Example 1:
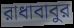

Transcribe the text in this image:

রাধাবাবুর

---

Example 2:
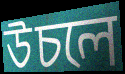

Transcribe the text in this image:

উচলে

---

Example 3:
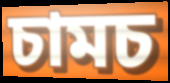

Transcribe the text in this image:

চামচ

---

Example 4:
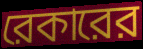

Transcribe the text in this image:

রেকারের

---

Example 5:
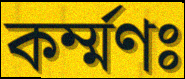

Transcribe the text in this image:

কর্ম্মণঃ